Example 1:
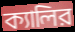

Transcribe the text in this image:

ক্যালির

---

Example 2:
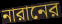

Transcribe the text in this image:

নারানের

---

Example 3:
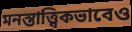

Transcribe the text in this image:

মনস্তাত্ত্বিকভাবেও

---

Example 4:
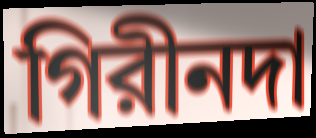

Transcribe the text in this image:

গিরীনদা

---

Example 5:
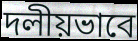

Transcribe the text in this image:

দলীয়ভাবে